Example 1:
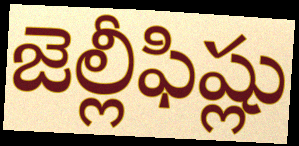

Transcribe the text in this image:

జెల్లీఫిష్లు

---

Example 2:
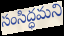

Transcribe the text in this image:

సంసిద్ధమని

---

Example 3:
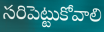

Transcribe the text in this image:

సరిపెట్టుకోవాలి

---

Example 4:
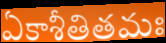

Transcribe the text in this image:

ఏకాశీతితమః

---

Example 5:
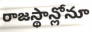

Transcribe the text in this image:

రాజస్థాన్లోనూ